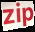
zip